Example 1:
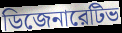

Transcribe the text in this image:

ডিজেনারেটিভ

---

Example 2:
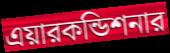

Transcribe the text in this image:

এয়ারকন্ডিশনার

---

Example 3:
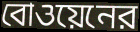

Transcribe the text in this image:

বোওয়েনের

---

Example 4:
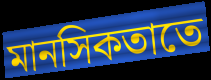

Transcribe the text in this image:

মানসিকতাতে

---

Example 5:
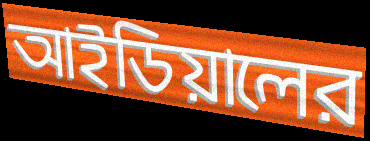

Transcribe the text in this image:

আইডিয়ালের